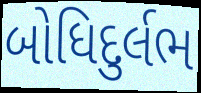
બોધિદુર્લભ